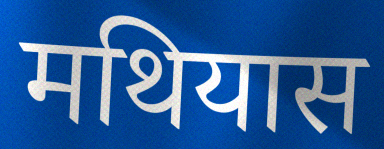
मथियास